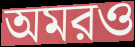
অমরও